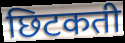
छिटकती